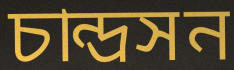
চান্দ্রসন